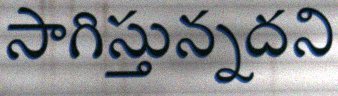
సాగిస్తున్నదని